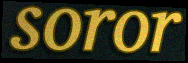
soror